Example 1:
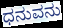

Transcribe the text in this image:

ಧನುವನು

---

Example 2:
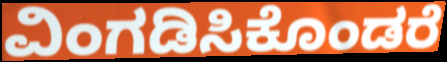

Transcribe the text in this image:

ವಿಂಗಡಿಸಿಕೊಂಡರೆ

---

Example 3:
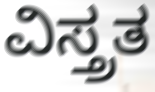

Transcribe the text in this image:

ವಿಸ್ತ್ರತ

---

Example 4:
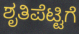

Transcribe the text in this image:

ಶೃತಿಪೆಟ್ಟಿಗೆ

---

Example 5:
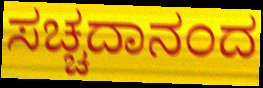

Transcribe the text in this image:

ಸಚ್ಚದಾನಂದ